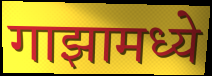
गाझामध्ये